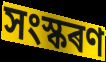
সংস্কৰণ